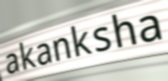
akanksha